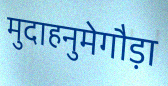
मुदाहनुमेगौड़ा